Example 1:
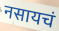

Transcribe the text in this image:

नसायचं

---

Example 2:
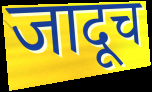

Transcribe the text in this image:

जादूच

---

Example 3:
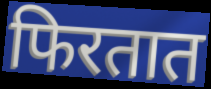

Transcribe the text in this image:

फिरतात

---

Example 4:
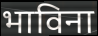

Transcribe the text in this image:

भाविना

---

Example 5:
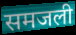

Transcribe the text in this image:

समजली